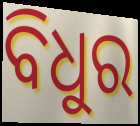
ବିଧୁର